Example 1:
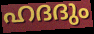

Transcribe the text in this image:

ഹദദും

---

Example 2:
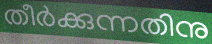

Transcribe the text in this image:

തീർക്കുന്നതിനു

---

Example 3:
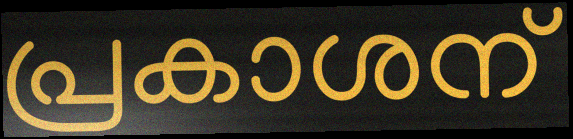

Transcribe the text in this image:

പ്രകാശന്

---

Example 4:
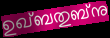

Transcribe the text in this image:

ഉഖ്ബതുബ്നു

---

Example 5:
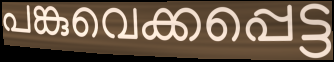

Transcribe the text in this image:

പങ്കുവെക്കപ്പെട്ട